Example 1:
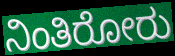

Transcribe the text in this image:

ನಿಂತಿರೋರು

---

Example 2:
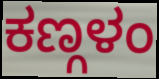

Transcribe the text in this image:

ಕಣ್ಗಳಂ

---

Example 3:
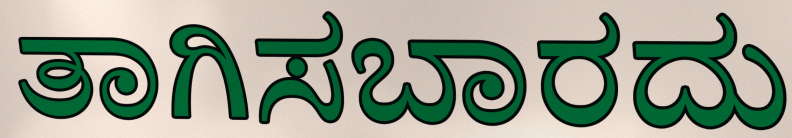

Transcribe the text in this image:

ತಾಗಿಸಬಾರದು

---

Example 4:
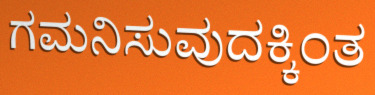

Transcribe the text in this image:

ಗಮನಿಸುವುದಕ್ಕಿಂತ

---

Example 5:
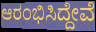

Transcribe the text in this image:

ಆರಂಭಿಸಿದ್ದೇವೆ